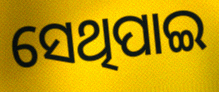
ସେଥିପାଇ